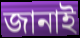
জানাই